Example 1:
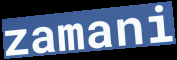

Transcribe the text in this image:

zamani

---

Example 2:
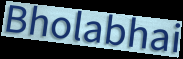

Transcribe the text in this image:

Bholabhai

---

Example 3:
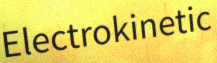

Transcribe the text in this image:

Electrokinetic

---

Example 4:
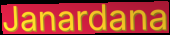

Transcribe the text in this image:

Janardana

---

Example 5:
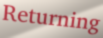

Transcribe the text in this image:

Returning